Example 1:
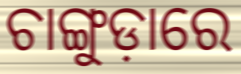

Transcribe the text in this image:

ଚାଙ୍ଗୁଡ଼ାରେ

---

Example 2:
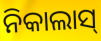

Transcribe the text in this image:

ନିକାଲାସ୍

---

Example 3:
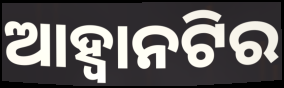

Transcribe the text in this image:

ଆହ୍ଵାନଟିର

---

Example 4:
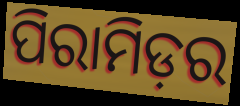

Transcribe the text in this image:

ପିରାମିଡ଼ର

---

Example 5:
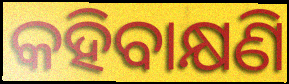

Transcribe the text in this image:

କହିବାକ୍ଷଣି